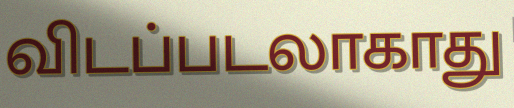
விடப்படலாகாது